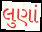
લુણાં